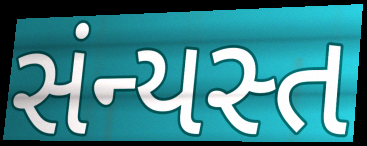
સંન્યસ્ત